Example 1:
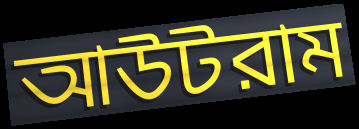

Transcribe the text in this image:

আউটরাম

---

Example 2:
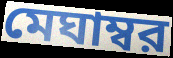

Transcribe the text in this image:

মেঘাম্বর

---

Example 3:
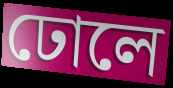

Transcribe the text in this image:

ঢোলে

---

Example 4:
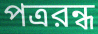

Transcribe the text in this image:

পত্ররন্ধ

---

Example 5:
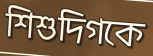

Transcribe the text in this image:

শিশুদিগকে